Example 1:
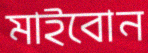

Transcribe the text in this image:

মাইবোন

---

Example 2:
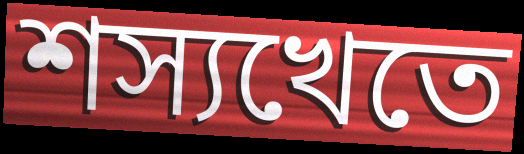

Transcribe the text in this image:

শস্যখেতে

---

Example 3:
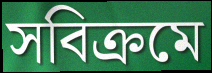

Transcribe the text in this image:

সবিক্রমে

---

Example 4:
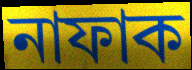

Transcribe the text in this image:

নাফাক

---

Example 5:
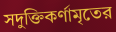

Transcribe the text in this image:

সদুক্তিকর্ণামৃতের